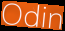
Odin